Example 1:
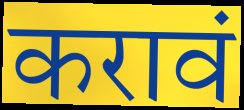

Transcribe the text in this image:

करावं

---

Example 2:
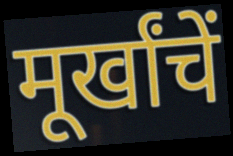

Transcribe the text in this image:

मूर्खांचें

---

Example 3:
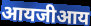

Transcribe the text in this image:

आयजीआय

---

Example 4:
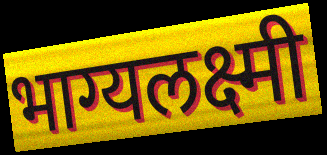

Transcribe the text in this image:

भाग्यलक्ष्मी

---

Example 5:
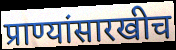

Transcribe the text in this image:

प्राण्यांसारखीच